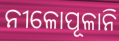
ନୀଳୋପୂଳାନି